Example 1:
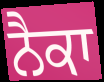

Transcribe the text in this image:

ਨੈਕਾ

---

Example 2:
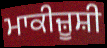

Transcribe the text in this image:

ਮਾਕੀਜ਼ੂਸ਼ੀ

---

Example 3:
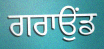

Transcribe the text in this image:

ਗਰਾਉਂਡ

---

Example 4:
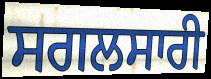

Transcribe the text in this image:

ਸਗਲਸਾਰੀ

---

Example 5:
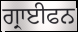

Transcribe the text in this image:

ਗ੍ਰਾਈਫਨ